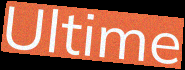
Ultime